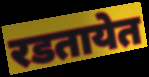
रडतायेत